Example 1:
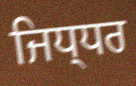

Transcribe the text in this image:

ਜਿਧ੍ਧਰ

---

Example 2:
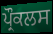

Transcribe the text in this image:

ਪ੍ਰੌਕਲਸ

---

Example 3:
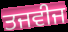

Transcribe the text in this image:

ਤਜਵੀਜ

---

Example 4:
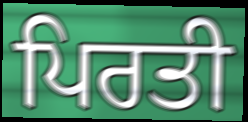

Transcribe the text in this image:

ਪਿਰਤੀ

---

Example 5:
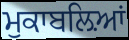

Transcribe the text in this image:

ਮੁਕਾਬਲ਼ਿਆਂ